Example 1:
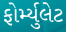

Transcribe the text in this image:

ફોર્મ્યુલેટ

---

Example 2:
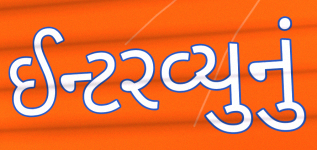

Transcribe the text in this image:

ઈન્ટરવ્યુનું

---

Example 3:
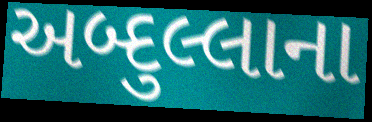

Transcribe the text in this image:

અબ્દુલ્લાના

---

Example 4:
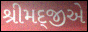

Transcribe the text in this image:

શ્રીમદ્જીએ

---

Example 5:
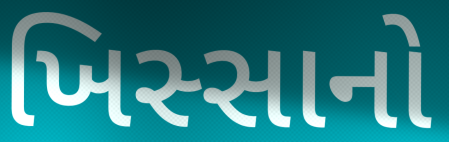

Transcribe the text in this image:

ખિસ્સાનો